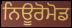
ਨਿਊਰੋਮੋਡ